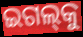
ଇଗଲ୍‌କୁ